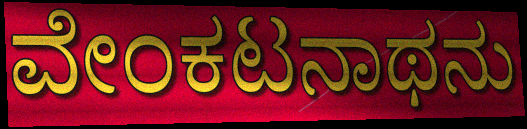
ವೇಂಕಟನಾಥನು